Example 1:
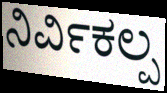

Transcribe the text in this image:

ನಿರ್ವಿಕಲ್ಪ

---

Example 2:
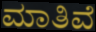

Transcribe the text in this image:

ಮಾತಿವೆ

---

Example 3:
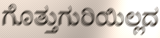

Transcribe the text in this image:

ಗೊತ್ತುಗುರಿಯಿಲ್ಲದ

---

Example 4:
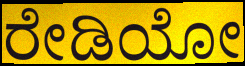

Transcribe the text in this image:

ರೇಡಿಯೋ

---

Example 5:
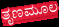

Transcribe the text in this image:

ತೃಣಮೂಲ